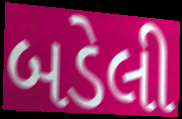
બડેલી